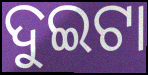
ଦୁଇଟା